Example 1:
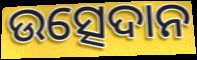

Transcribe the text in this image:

ଉତ୍ସେଦାନ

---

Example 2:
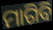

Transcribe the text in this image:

ମାଗିବି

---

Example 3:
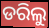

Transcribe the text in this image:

ଡରିଲୁ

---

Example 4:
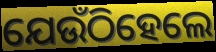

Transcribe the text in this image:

ଯେଉଁଠିହେଲେ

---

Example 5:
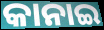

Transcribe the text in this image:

କାନାଇ